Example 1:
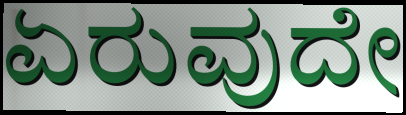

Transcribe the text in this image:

ಏರುವುದೇ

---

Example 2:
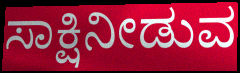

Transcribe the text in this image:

ಸಾಕ್ಷಿನೀಡುವ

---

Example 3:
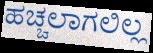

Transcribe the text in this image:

ಹಚ್ಚಲಾಗಲಿಲ್ಲ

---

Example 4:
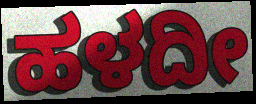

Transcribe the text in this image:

ಹಳದೀ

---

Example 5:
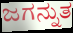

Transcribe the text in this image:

ಜಗನ್ನುತ